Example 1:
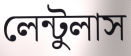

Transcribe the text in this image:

লেন্টুলাস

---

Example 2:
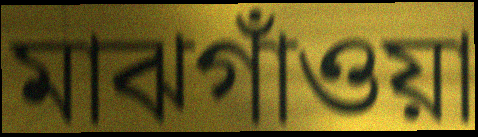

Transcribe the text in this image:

মাঝগাঁওয়া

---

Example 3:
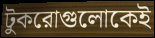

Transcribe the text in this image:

টুকরোগুলোকেই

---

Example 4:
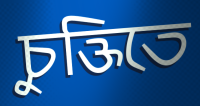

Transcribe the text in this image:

চুক্তিতে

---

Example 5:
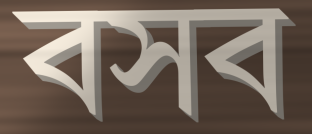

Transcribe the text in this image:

বসব